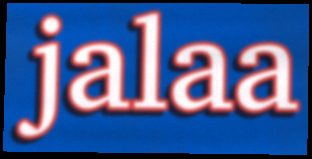
jalaa